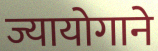
ज्यायोगाने